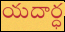
యదార్ధ